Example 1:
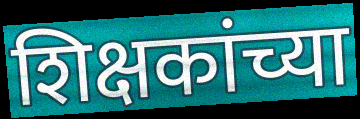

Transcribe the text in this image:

शिक्षकांच्‍या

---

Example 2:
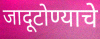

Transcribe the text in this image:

जादूटोण्याचे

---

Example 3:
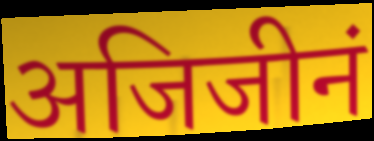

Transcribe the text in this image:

अजिजीनं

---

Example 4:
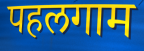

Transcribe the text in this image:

पहलगाम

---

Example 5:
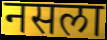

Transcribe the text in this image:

नसला